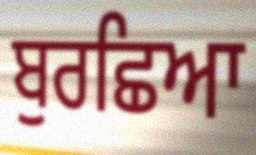
ਬੁਰਛਿਆ